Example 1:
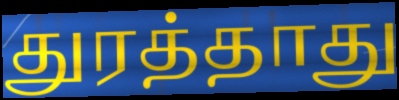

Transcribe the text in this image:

துரத்தாது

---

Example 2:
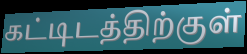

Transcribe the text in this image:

கட்டிடத்திற்குள்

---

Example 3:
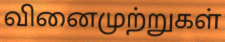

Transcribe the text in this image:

வினைமுற்றுகள்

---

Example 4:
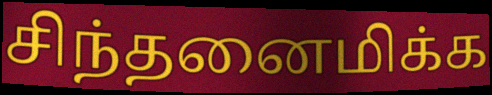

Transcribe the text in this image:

சிந்தனைமிக்க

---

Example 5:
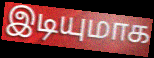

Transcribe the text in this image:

இடியுமாக